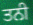
ਤਨੀ